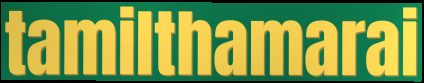
tamilthamarai